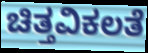
ಚಿತ್ತವಿಕಲತೆ